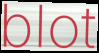
blot